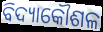
ବିଦ୍ୟାକୌଶଳ